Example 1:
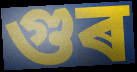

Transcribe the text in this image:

গুৰ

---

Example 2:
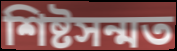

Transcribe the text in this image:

শিষ্টসন্মত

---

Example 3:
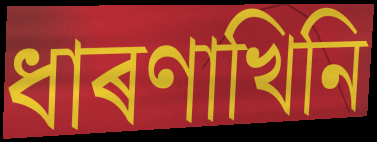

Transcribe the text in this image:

ধাৰণাখিনি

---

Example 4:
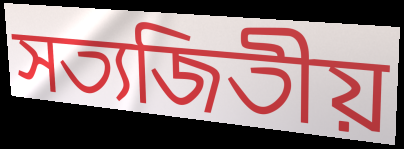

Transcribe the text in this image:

সত্যজিতীয়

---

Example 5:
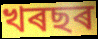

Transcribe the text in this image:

খৰছৰ